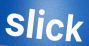
slick